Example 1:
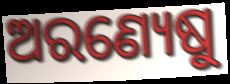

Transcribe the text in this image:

ଅରଣ୍ୟେଷୁ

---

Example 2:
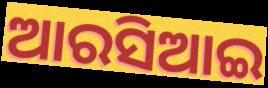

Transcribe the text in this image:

ଆରସିଆଇ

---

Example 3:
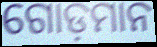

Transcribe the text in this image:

ଗୋଡ଼ମାନ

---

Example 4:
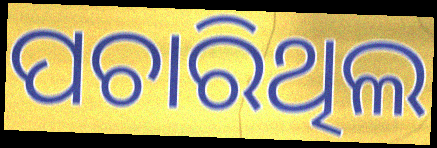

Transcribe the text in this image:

ପଚାରିଥିଲ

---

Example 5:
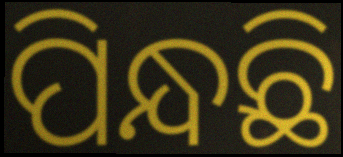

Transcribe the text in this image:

ପିନ୍ଧଛି